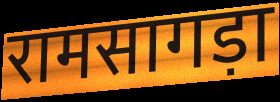
रामसागड़ा